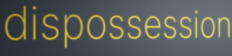
dispossession